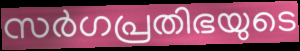
സർഗപ്രതിഭയുടെ